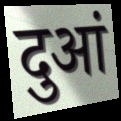
दुआं